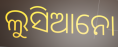
ଲୁସିଆନୋ